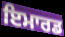
ਇਮਾਰਡ